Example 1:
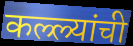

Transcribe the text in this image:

कल्ल्यांची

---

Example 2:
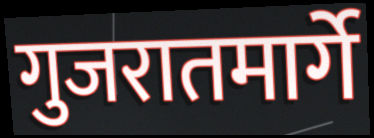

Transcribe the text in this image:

गुजरातमार्गे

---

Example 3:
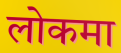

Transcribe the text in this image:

लोकमा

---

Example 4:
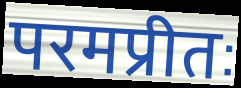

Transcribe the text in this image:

परमप्रीतः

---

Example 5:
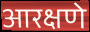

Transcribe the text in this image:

आरक्षणे